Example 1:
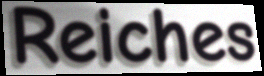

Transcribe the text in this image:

Reiches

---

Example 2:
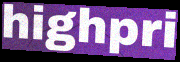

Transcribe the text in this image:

highpri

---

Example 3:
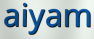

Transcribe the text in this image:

aiyam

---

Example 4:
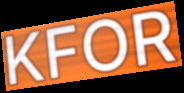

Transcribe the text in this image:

KFOR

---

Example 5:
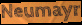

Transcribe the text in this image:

Neumayr